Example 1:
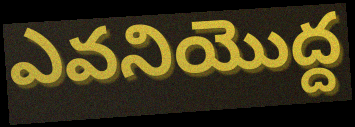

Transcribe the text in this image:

ఎవనియొద్ద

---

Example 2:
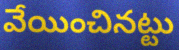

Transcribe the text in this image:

వేయించినట్టు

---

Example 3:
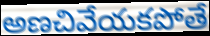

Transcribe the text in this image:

అణచివేయకపోతే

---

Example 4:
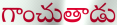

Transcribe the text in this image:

గాంచుతాడు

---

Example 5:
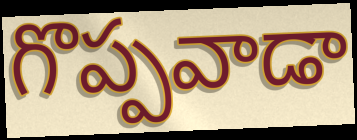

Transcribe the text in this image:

గొప్పవాడా